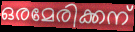
ഒരമേരിക്കന്